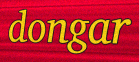
dongar